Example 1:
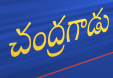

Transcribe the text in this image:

చంద్రగాడు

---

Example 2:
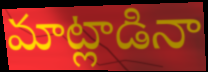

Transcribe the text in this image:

మాట్లాడినా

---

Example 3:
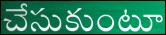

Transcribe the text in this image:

చేసుకుంటూ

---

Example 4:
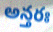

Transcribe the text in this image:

అన్తరః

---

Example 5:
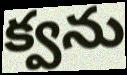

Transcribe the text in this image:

క్వను